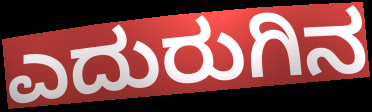
ಎದುರುಗಿನ